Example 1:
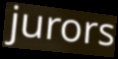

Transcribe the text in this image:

jurors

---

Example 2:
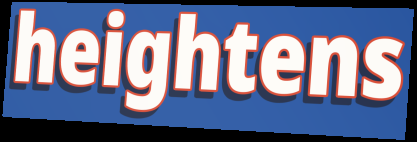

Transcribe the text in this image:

heightens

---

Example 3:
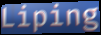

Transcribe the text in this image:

Liping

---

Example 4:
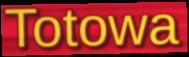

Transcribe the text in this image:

Totowa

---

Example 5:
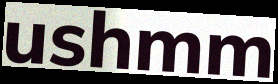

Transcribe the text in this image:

ushmm